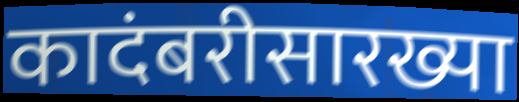
कादंबरीसारख्या